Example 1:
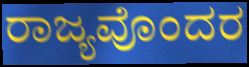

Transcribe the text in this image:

ರಾಜ್ಯವೊಂದರ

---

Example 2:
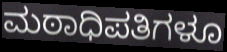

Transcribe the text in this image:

ಮಠಾಧಿಪತಿಗಳೂ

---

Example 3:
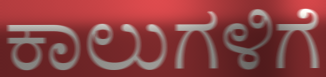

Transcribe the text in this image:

ಕಾಲುಗಳಿಗೆ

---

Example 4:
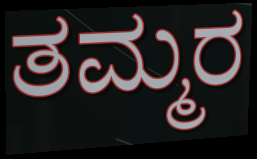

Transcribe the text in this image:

ತಮ್ಮರ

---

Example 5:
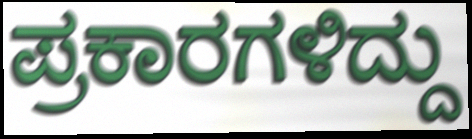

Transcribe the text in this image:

ಪ್ರಕಾರಗಳಿದ್ದು